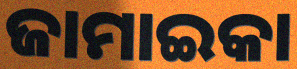
ଜାମାଇକା